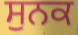
ਸੁਨਕ